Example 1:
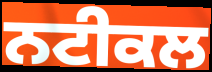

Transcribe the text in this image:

ਨਟੀਕਲ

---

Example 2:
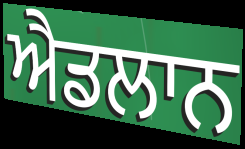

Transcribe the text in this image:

ਐਡਲਾਨ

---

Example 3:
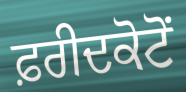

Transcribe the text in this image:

ਫ਼ਰੀਦਕੋਟੋਂ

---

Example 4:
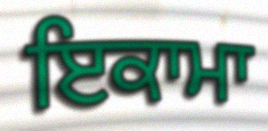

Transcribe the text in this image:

ਇਕਾਮਾ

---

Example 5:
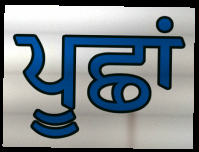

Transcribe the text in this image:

ਪੂਛਾਂ